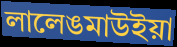
লালেঙমাউইয়া